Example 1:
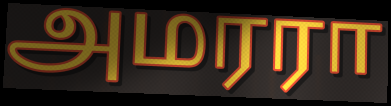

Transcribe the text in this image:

அமரரா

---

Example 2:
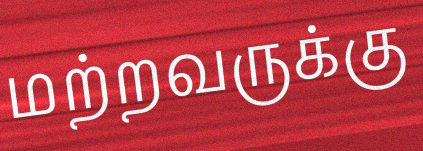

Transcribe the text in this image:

மற்றவருக்கு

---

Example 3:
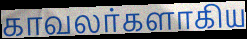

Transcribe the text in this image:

காவலர்களாகிய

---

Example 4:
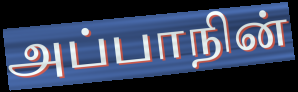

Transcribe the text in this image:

அப்பாநின்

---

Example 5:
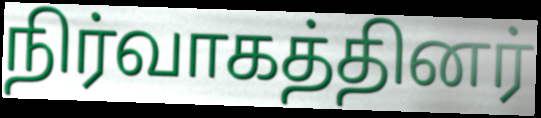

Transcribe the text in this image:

நிர்வாகத்தினர்